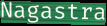
Nagastra